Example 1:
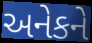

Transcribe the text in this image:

અનેકને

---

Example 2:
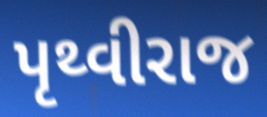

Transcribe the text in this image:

પૃથ્વીરાજ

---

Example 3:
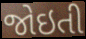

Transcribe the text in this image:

જોઇતી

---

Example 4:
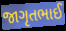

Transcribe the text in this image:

જાગૃતભાઈ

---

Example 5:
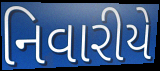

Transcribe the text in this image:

નિવારીયે